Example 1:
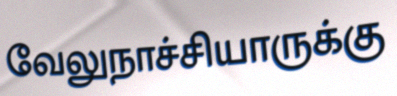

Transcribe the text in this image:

வேலுநாச்சியாருக்கு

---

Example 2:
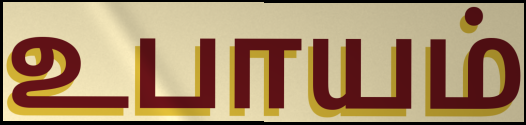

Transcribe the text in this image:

உபாயம்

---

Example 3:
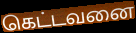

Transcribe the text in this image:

கெட்டவனை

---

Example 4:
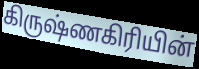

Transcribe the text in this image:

கிருஷ்ணகிரியின்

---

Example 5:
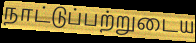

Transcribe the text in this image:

நாட்டுப்பற்றுடைய